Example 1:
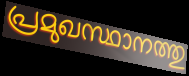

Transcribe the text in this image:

പ്രമുഖസ്ഥാനത്തു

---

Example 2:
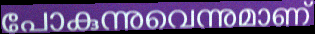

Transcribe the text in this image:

പോകുന്നുവെന്നുമാണ്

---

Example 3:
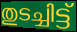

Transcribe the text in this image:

തുടച്ചിട്ട്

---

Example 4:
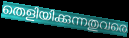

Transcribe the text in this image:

തെളിയിക്കുന്നതുവരെ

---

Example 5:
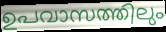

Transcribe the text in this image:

ഉപവാസത്തിലും